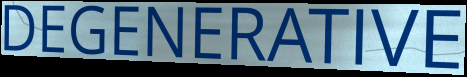
DEGENERATIVE